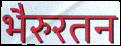
भैरुरतन